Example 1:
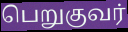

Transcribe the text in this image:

பெறுகுவர்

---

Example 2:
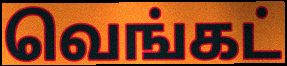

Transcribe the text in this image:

வெங்கட்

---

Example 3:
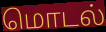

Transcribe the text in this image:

மொடல்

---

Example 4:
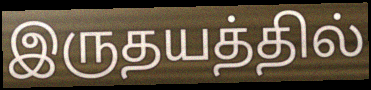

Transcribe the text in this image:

இருதயத்தில்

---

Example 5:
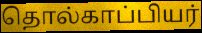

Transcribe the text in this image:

தொல்காப்பியர்